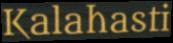
Kalahasti